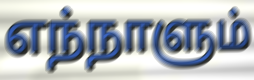
எந்நாளும்